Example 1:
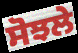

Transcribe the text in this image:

ਸੋਝਲੇ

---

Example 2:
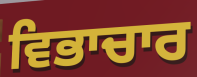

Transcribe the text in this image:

ਵਿਭਾਚਾਰ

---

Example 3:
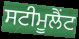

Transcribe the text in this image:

ਸਟੀਮੂਲੈਂਟ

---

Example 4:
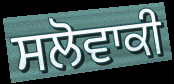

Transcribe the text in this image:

ਸਲੋਵਾਕੀ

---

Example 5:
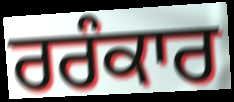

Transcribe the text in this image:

ਰਰੰਕਾਰ